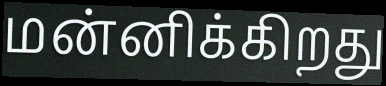
மன்னிக்கிறது